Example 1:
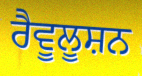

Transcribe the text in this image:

ਰੈਵੂਲੂਸ਼ਨ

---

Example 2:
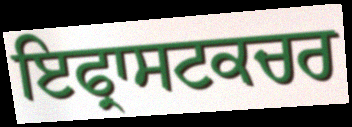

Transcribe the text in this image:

ਇਫ੍ਰਾਸਟਕਚਰ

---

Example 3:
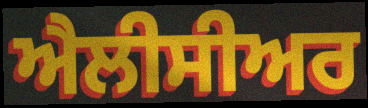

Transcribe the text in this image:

ਐਲੀਸੀਅਰ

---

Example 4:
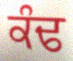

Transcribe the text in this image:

ਕੰਢ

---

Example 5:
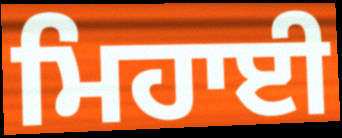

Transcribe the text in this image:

ਮਿਹਾਈ